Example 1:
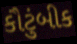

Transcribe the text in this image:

કૌટુંબીક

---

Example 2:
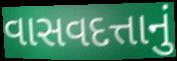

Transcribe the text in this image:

વાસવદત્તાનું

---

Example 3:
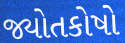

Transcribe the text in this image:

જ્યોતકોષો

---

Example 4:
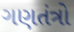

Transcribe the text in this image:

ગણતંત્રો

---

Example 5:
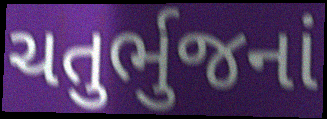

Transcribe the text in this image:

ચતુર્ભુજનાં